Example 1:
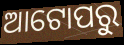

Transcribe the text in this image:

ଆଟୋପରୁ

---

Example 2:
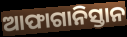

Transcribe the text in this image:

ଆଫାଗାନିସ୍ତାନ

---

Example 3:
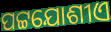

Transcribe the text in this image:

ପଟ୍ଟଯୋଶୀଏ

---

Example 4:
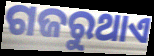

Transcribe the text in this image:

ଗଜରୁଥାଏ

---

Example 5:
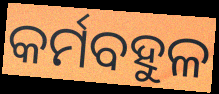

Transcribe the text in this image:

କର୍ମବହୁଳ